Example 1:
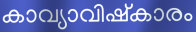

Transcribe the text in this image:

കാവ്യാവിഷ്കാരം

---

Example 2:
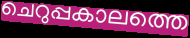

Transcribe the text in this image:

ചെറുപ്പകാലത്തെ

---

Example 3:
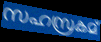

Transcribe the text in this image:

സഹസ്രകമ്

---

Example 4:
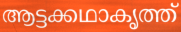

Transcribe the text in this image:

ആട്ടക്കഥാകൃത്ത്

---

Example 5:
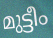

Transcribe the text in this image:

മുട്ടീം